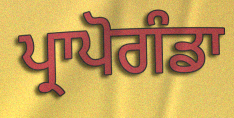
ਪ੍ਰਾਪੋਗੰਡਾ